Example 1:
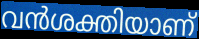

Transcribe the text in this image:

വൻശക്തിയാണ്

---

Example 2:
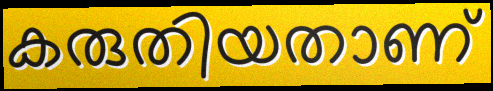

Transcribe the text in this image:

കരുതിയതാണ്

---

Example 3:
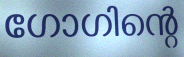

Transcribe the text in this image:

ഗോഗിന്റെ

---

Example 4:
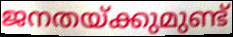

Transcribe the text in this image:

ജനതയ്ക്കുമുണ്ട്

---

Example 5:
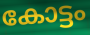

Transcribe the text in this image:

കോട്ടം